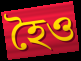
হৈও